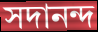
সদানন্দ